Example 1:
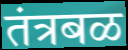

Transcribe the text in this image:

तंत्रबळ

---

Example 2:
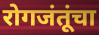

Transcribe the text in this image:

रोगजंतूंचा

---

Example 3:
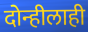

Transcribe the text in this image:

दोन्हीलाही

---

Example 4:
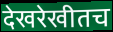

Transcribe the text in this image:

देखरेखीतच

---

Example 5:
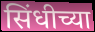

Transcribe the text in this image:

सिंधीच्या